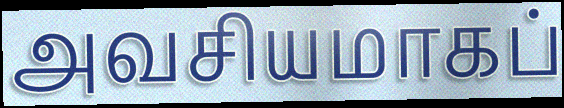
அவசியமாகப்